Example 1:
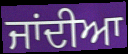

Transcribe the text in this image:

ਜਾਂਦੀਆ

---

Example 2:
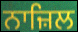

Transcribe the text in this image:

ਨਾਜ਼ਿਲ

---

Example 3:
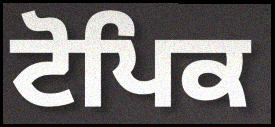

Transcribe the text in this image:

ਟੋਪਿਕ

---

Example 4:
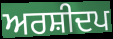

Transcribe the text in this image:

ਅਰਸ਼ੀਦਪ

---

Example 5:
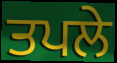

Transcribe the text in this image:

ਤਪਲੇ